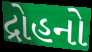
દ્રોહનો